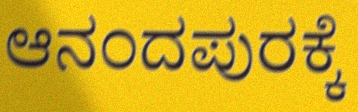
ಆನಂದಪುರಕ್ಕೆ